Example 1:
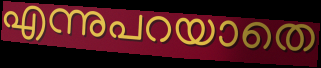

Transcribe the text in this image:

എന്നുപറയാതെ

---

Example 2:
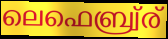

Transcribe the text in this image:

ലെഫെബ്ര്വ്ര്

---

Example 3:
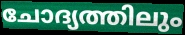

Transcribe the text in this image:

ചോദ്യത്തിലും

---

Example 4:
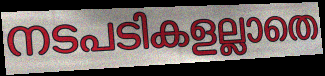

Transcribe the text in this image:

നടപടികളല്ലാതെ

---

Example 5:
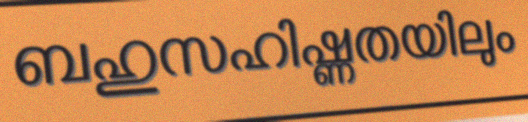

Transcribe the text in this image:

ബഹുസഹിഷ്ണതയിലും